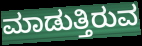
ಮಾಡುತ್ತಿರುವ